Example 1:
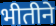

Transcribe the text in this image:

भीतीने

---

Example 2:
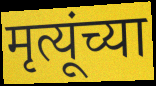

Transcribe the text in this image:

मृत्यूंच्या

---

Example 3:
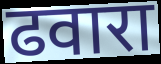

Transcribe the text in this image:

ढवारा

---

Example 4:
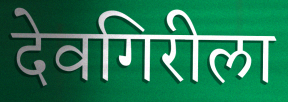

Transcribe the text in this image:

देवगिरीला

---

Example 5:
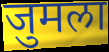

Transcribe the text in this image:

जुमला